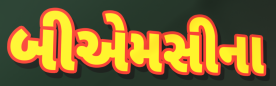
બીએમસીના